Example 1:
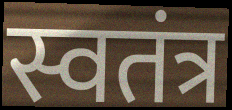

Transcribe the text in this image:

स्‍वतंत्र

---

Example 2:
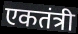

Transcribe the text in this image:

एकतंत्री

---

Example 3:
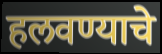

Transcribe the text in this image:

हलवण्याचे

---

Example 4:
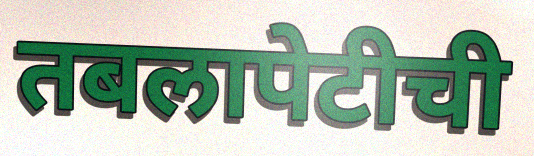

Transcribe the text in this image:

तबलापेटीची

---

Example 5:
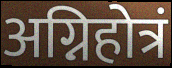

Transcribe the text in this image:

अग्निहोत्रं